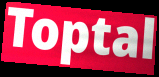
Toptal